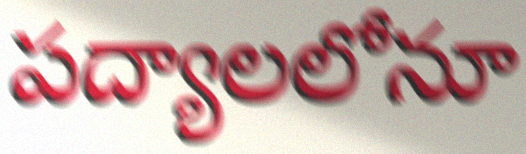
పద్యాలలోనూ